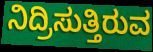
ನಿದ್ರಿಸುತ್ತಿರುವ